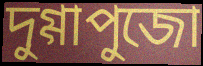
দুগ্গাপুজো